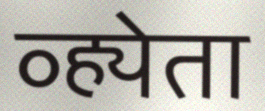
व्ह्येता